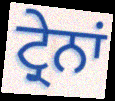
ਟ੍ਰੇਨਾਂ